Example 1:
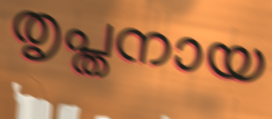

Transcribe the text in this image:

തൃപ്തനായ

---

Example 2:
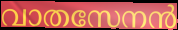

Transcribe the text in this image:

വാതസേനൻ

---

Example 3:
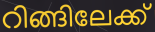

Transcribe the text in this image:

റിങ്ങിലേക്ക്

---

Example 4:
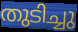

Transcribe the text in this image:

തുടിച്ചു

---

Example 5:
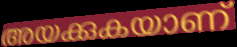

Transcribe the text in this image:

അയക്കുകയാണ്